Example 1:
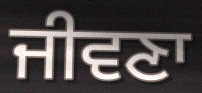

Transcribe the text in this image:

ਜੀਵਣਾ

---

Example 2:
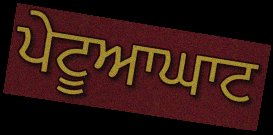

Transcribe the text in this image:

ਪੇਟੂਆਘਾਟ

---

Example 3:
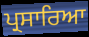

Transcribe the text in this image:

ਪ੍ਰਸਾਰਿਆ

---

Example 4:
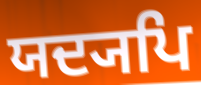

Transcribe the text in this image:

ਯਦ੍ਯਪਿ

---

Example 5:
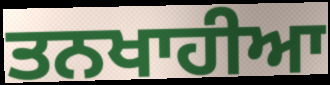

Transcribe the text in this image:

ਤਨਖਾਹੀਆ